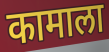
कामाला